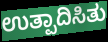
ಉತ್ಪಾದಿಸಿತು